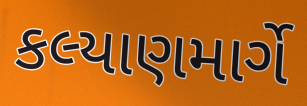
કલ્યાણમાર્ગે